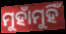
ମୁହାଁମୁହିଁ